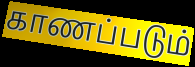
காணப்படும்